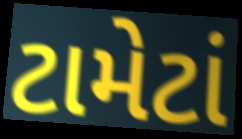
ટામેટાં